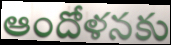
ఆందోళనకు